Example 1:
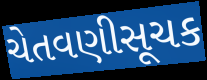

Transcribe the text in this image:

ચેતવણીસૂચક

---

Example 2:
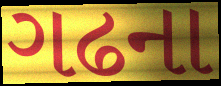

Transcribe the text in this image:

ગઢના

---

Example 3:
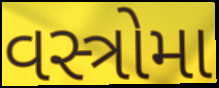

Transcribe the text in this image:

વસ્ત્રોમા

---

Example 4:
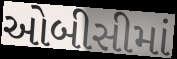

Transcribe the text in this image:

ઓબીસીમાં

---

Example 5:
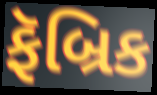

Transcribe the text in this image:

ફૅબ્રિક